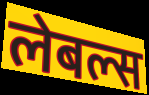
लेबल्स